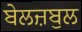
ਬੇਲਜ਼ਬੁਲ